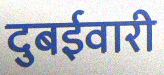
दुबईवारी